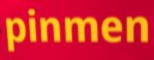
pinmen